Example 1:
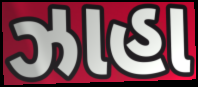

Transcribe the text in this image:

ઝાહા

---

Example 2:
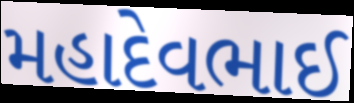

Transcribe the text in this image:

મહાદેવભાઈ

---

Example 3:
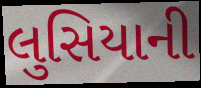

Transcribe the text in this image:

લુસિયાની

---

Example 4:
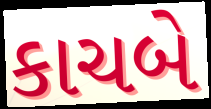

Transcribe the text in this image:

કાચબે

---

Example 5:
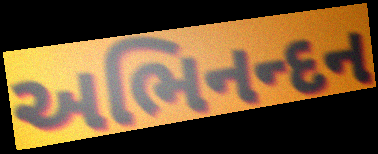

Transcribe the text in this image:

અભિનન્દન